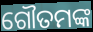
ଗୌତମଙ୍କ